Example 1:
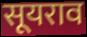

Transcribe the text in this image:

सूयराव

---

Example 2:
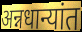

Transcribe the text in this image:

अन्नधान्यांत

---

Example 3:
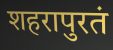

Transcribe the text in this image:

शहरापुरतं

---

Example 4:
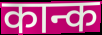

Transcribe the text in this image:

कान्क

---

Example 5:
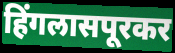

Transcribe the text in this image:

हिंगलासपूरकर